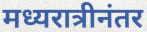
मध्यरात्रीनंतर